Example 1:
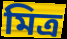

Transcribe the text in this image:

মিত্ৰ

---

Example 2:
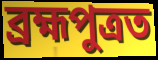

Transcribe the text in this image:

ব্ৰহ্মপুত্ৰত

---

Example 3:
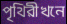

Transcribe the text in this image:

পৃথিৱীখনে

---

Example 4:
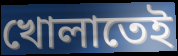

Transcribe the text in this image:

খোলাতেই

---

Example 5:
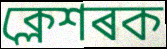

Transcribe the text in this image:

ক্লেশৰক